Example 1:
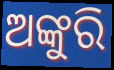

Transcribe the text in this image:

ଅଙ୍କୁରି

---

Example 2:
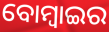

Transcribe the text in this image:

ବୋମ୍ବାଇର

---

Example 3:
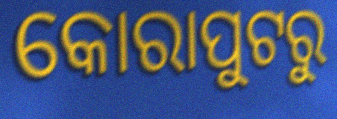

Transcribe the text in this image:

କୋରାପୁଟରୁ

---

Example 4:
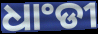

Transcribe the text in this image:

ଧାଂଡୀ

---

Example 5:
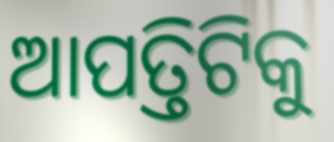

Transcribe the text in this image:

ଆପତ୍ତିଟିକୁ